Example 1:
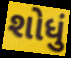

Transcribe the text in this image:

શોધું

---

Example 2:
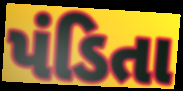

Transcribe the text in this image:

પંડિતા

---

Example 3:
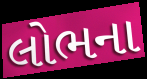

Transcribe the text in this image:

લોભના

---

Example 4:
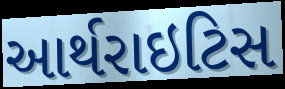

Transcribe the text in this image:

આર્થરાઇટિસ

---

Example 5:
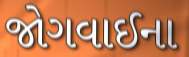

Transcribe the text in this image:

જોગવાઈના